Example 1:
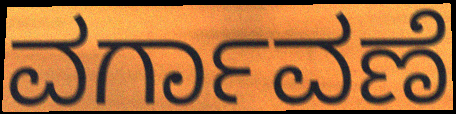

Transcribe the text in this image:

ವರ್ಗಾವಣೆ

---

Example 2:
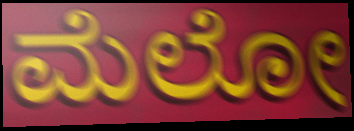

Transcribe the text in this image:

ಮೆಲೋ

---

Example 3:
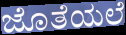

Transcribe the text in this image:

ಜೊತೆಯಲೆ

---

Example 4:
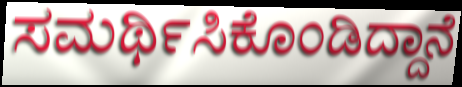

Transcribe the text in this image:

ಸಮರ್ಥಿಸಿಕೊಂಡಿದ್ದಾನೆ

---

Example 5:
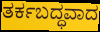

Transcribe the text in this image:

ತರ್ಕಬದ್ಧವಾದ